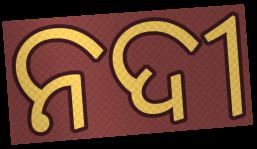
ନଦୀ